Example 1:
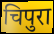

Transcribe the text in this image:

चिपुरा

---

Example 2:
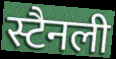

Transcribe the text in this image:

स्टैनली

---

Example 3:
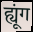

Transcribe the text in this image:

ह्यूंग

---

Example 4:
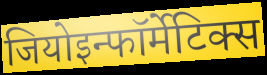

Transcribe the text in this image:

जियोइन्फॉर्मेटिक्स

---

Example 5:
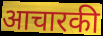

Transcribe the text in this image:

आचारकी